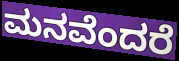
ಮನವೆಂದರೆ